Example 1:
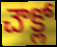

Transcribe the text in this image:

చౌక్లో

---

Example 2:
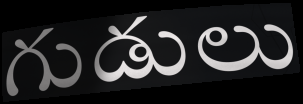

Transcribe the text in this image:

గుడులు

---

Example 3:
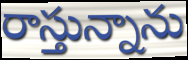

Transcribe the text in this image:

రాస్తున్నాను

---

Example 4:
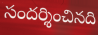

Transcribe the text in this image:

సందర్శించినది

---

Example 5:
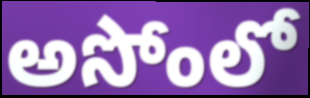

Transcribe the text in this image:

అసోంలో